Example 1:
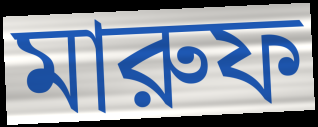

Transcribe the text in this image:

মারুফ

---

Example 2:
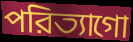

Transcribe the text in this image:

পরিত্যাগো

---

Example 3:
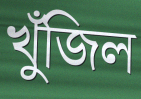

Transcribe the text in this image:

খুঁজিল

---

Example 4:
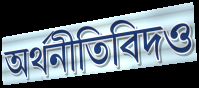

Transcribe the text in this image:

অর্থনীতিবিদও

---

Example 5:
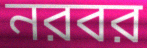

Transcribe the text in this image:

নরবর